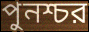
পুনশ্চর